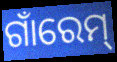
ଗାଁରେମ୍